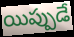
యిప్పుడే